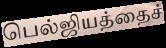
பெல்ஜியத்தைச்